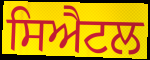
ਸਿਐਟਲ